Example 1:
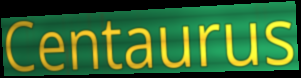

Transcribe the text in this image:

Centaurus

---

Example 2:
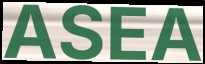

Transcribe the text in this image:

ASEA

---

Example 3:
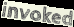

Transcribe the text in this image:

invoked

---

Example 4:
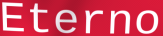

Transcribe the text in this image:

Eterno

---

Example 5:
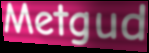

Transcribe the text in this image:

Metgud